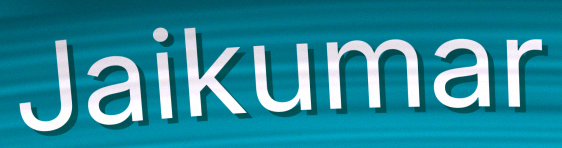
Jaikumar